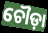
ଚୌଡ଼ା